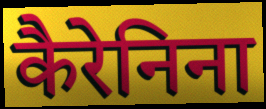
कैरेनिना